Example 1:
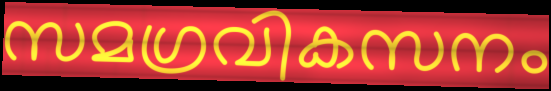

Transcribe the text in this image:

സമഗ്രവികസനം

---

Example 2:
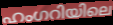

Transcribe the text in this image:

ഹംഗറിയിലെ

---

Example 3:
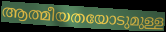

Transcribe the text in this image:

ആത്മീയതയോടുമുള്ള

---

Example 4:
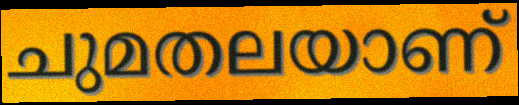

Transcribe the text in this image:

ചുമതലയാണ്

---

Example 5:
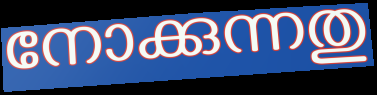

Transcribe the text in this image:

നോക്കുന്നതു